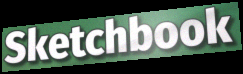
Sketchbook